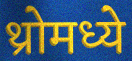
थ्रोमध्ये